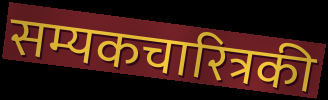
सम्यकचारित्रकी